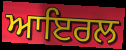
ਆਇਰਲ